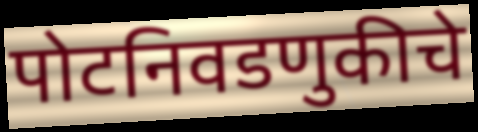
पोटनिवडणुकीचे